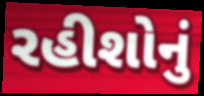
રહીશોનું